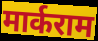
मार्कराम